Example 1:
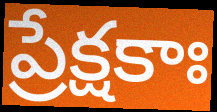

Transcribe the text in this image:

ప్రేక్షకాః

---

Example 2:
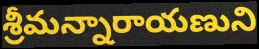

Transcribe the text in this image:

శ్రీమన్నారాయణుని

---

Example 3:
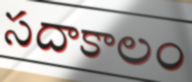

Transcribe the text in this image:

సదాకాలం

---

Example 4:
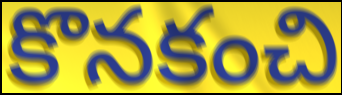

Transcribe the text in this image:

కొనకంచి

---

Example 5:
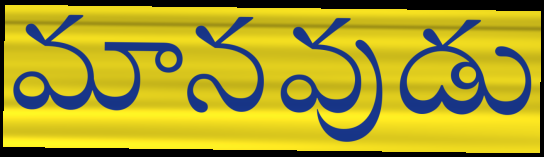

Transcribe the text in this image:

మానవుడు